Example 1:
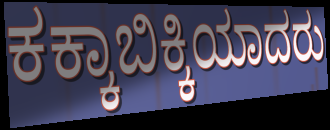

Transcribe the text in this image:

ಕಕ್ಕಾಬಿಕ್ಕಿಯಾದರು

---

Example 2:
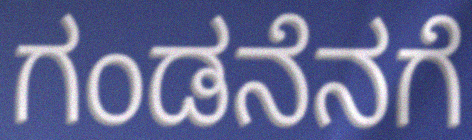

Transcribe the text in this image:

ಗಂಡನೆನಗೆ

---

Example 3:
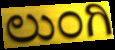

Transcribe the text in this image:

ಲುಂಗಿ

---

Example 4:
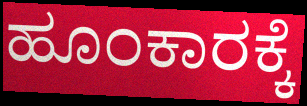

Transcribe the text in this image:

ಹೂಂಕಾರಕ್ಕೆ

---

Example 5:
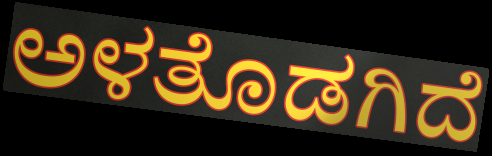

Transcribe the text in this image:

ಅಳತೊಡಗಿದೆ